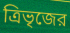
ত্রিভৃজের